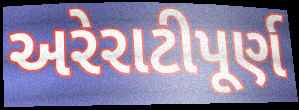
અરેરાટીપૂર્ણ